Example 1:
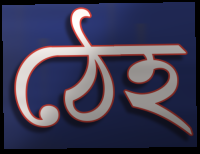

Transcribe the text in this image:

ঠেহ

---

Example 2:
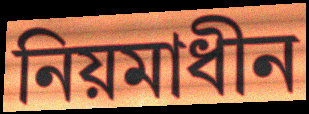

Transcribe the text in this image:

নিয়মাধীন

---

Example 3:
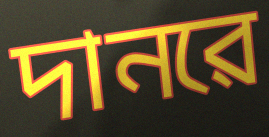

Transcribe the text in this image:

দানৱে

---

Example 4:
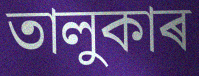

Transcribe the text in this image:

তালুকাৰ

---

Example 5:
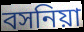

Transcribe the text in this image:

বসনিয়া